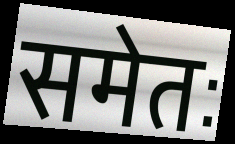
समेतः